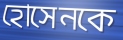
হোসেনকে